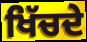
ਖਿੱਚਦੇ